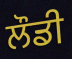
ਲੌਡੀ